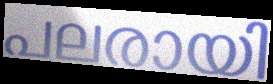
പലരായി